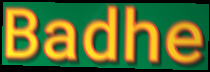
Badhe